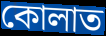
কোলাত